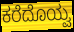
ಕರೆದೊಯ್ವ